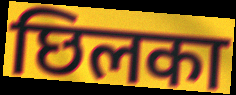
छिलका